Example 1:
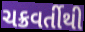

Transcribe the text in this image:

ચક્રવર્તીથી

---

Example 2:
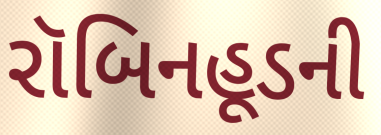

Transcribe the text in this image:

રૉબિનહૂડની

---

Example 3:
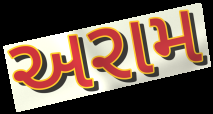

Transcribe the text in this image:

અરામ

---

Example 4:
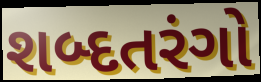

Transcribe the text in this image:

શબ્દતરંગો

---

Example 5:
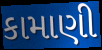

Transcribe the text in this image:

કામાણી